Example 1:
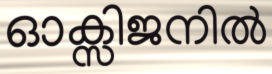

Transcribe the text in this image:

ഓക്സിജനിൽ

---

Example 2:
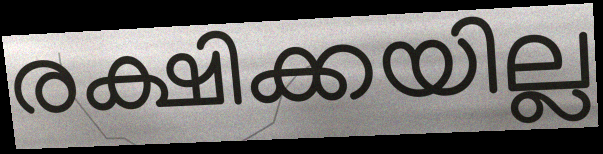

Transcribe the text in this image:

രക്ഷിക്കയില്ല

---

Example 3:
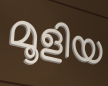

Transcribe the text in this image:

മൂളിയ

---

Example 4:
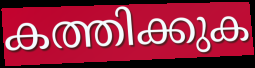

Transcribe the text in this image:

കത്തിക്കുക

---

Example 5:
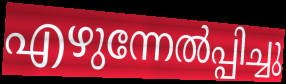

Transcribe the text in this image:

എഴുന്നേൽപ്പിച്ചു